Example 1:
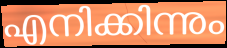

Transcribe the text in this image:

എനിക്കിന്നും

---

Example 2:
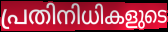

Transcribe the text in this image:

പ്രതിനിധികളുടെ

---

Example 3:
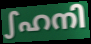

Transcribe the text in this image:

ഽഹനി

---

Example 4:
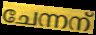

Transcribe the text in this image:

ചേന്നന്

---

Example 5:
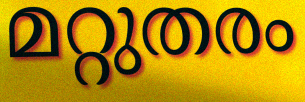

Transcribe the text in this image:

മറ്റുതരം